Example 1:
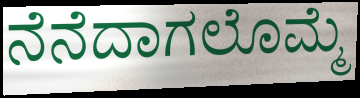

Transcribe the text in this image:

ನೆನೆದಾಗಲೊಮ್ಮೆ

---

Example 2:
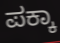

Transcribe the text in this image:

ಪಕ್ಕಾ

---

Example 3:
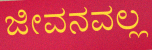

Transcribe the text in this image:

ಜೀವನವಲ್ಲ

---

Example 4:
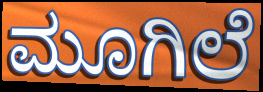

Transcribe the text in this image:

ಮೂಗಿಲೆ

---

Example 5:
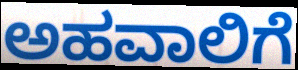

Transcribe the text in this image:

ಅಹವಾಲಿಗೆ